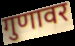
गुणावर